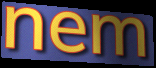
nem